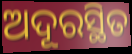
ଅଦୂରସ୍ଥିତ